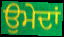
ਉਮੇਦਾਂ